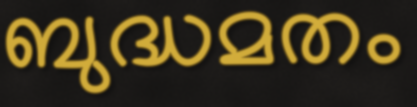
ബുദ്ധമതം